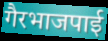
गैरभाजपाई